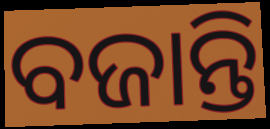
ବଜାନ୍ତି